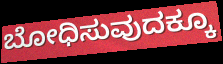
ಬೋಧಿಸುವುದಕ್ಕೂ